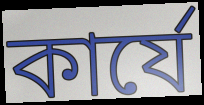
কার্যে